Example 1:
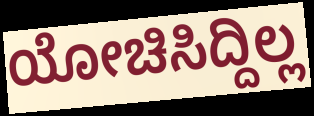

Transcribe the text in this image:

ಯೋಚಿಸಿದ್ದಿಲ್ಲ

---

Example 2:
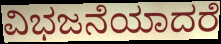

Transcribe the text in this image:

ವಿಭಜನೆಯಾದರೆ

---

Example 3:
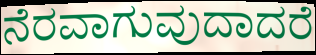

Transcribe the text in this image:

ನೆರವಾಗುವುದಾದರೆ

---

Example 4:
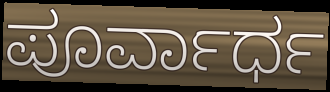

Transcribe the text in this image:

ಪೂರ್ವಾರ್ಧ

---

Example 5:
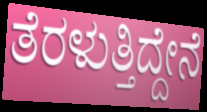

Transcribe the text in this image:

ತೆರಳುತ್ತಿದ್ದೇನೆ